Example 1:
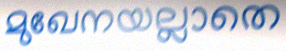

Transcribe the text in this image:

മുഖേനയല്ലാതെ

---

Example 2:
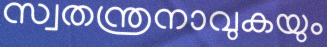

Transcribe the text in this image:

സ്വതന്ത്രനാവുകയും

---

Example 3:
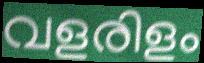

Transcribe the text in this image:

വളരിളം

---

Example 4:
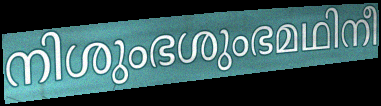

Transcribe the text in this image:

നിശുംഭശുംഭമഥിനീ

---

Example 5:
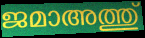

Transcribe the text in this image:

ജമാഅത്തു്